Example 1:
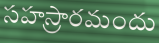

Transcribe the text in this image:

సహస్రారమందు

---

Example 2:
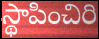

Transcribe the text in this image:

స్థాపించిరి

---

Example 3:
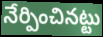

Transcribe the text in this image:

నేర్పించినట్టు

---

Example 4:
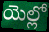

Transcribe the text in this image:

యెల్లో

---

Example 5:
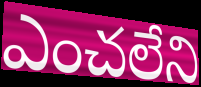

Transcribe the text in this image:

ఎంచలేని